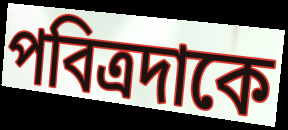
পবিত্রদাকে